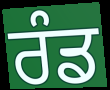
ਰੰਡ